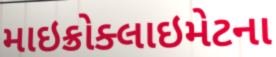
માઇક્રોક્લાઇમેટના